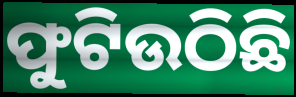
ଫୁଟିଉଠିଛି